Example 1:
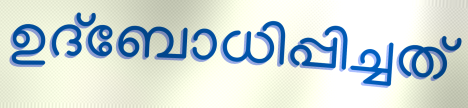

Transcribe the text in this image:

ഉദ്ബോധിപ്പിച്ചത്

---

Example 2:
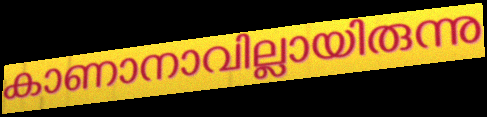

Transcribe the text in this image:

കാണാനാവില്ലായിരുന്നു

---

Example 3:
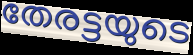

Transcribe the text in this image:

തേരട്ടയുടെ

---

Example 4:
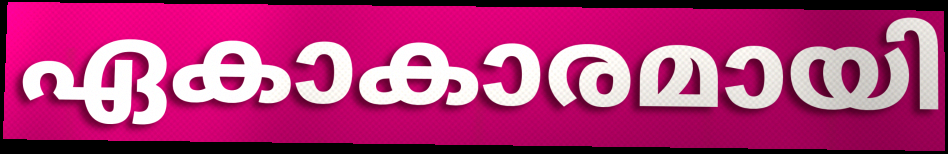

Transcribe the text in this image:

ഏകാകാരമായി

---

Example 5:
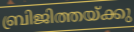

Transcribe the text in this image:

ബ്രിജിത്തയ്ക്കു